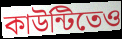
কাউন্টিতেও